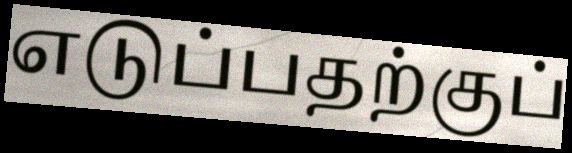
எடுப்பதற்குப்